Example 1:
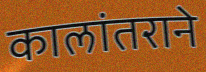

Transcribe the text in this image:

कालांतराने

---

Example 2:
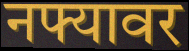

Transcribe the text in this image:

नफ्यावर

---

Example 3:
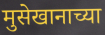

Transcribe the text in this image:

मुसेखानाच्या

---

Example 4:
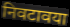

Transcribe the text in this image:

निवटावया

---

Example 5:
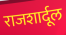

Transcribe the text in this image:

राजशार्दूल